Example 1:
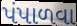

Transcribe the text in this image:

પંપાળવા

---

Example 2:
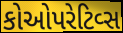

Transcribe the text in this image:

કોઓપરેટિવ્સ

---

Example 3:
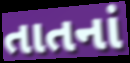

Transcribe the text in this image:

તાતનાં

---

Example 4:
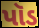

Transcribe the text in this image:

પૉડ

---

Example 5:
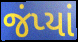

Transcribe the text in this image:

જંપ્યાં